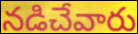
నడిచేవారు